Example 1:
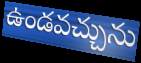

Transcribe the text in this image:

ఉండవచ్చును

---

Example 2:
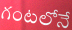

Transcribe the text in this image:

గంటలోనే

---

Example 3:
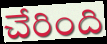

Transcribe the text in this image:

చేరింది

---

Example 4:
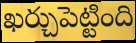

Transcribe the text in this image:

ఖర్చుపెట్టింది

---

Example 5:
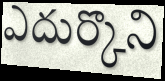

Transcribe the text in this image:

ఎదుర్కొని